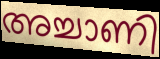
അച്ചാണി